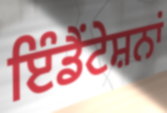
ਇੰਡੈਂਟੇਸ਼ਨਾਂ